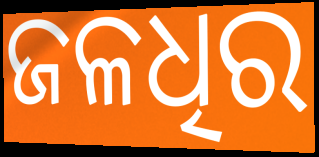
ଜଳଧିର